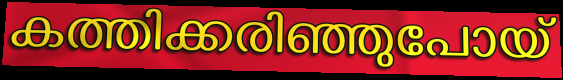
കത്തിക്കരിഞ്ഞുപോയ്